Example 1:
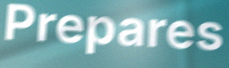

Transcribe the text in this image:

Prepares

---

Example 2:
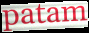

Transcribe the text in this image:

patam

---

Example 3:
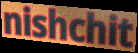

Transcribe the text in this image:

nishchit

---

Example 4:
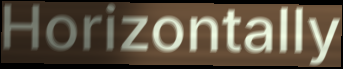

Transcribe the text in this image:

Horizontally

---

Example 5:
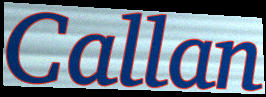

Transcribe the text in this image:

Callan